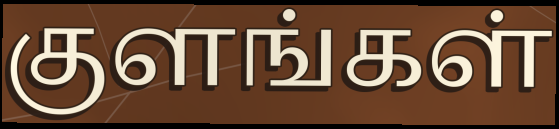
குளங்கள்